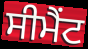
ਸੀਮੈੰਟ